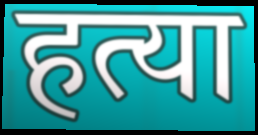
हत्‍या